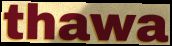
thawa